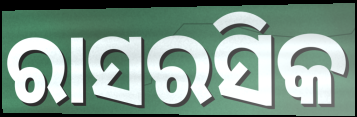
ରାସରସିକ